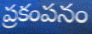
ప్రకంపనం